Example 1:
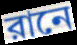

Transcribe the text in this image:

রানে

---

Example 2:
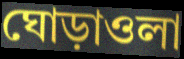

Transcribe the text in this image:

ঘোড়াওলা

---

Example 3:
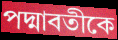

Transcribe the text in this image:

পদ্মাবতীকে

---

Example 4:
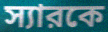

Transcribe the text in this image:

স্যারকে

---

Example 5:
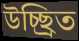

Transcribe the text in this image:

উচ্ছ্রিত